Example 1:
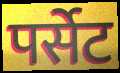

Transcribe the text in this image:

पर्सेट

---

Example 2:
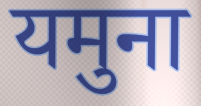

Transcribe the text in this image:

यमुना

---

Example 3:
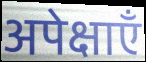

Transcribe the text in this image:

अपेक्षाएँ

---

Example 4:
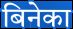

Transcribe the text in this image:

बिनेका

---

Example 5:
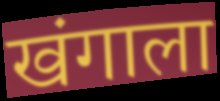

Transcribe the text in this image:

खंगाला